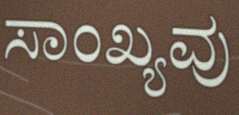
ಸಾಂಖ್ಯವು